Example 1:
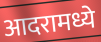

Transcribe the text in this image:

आदरामध्ये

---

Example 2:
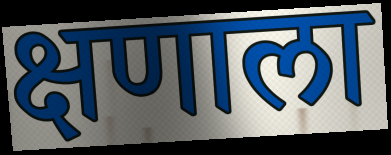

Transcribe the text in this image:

क्षणाला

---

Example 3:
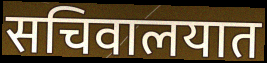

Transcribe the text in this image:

सचिवालयात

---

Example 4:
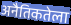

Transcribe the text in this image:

अनैतिकतेला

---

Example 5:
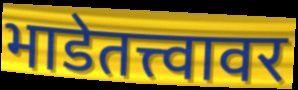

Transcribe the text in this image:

भाडेतत्त्वावर